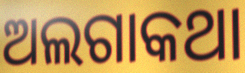
ଅଲଗାକଥା